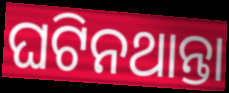
ଘଟିନଥାନ୍ତା